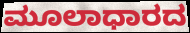
ಮೂಲಾಧಾರದ